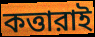
কত্তারাই